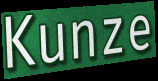
Kunze